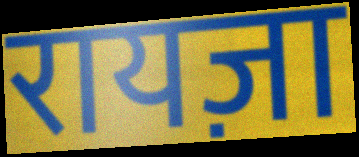
रायज़ा